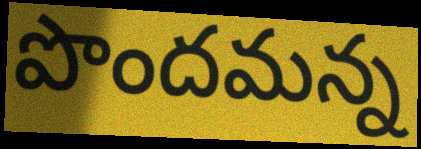
పొందమన్న